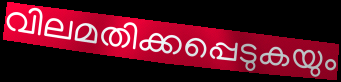
വിലമതിക്കപ്പെടുകയും